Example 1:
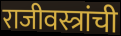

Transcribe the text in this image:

राजीवस्त्रांची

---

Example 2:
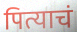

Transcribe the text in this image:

पित्याचं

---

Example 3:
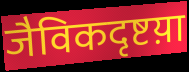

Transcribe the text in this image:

जैविकदृष्टय़ा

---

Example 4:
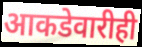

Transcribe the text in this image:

आकडेवारीही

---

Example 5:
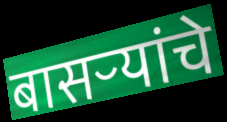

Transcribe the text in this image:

बासऱ्यांचे